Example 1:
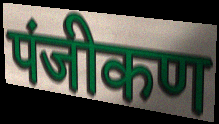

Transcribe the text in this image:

पंजीकण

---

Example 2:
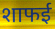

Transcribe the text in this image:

शाफई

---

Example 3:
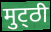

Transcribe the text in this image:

मुट्‌ठी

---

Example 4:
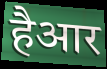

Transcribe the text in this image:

हैआर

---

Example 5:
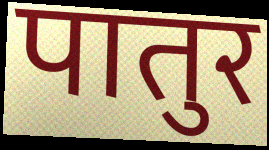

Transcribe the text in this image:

पातुर